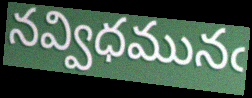
నవ్విధమునఁ